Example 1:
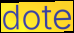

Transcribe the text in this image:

dote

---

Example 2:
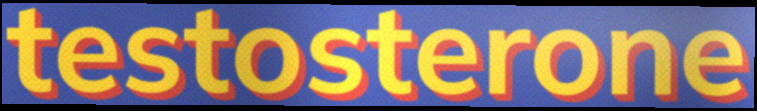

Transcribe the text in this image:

testosterone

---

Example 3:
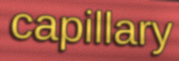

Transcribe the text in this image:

capillary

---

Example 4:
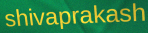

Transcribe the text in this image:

shivaprakash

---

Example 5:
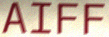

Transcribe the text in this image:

AIFF